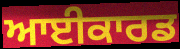
ਆਈਕਾਰਡ